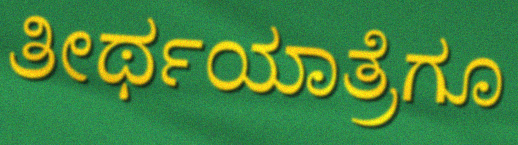
ತೀರ್ಥಯಾತ್ರೆಗೂ